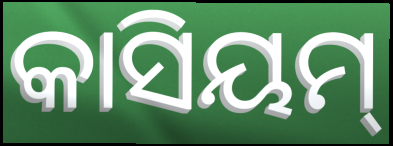
କାସିୟମ୍